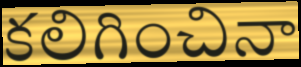
కలిగించినా